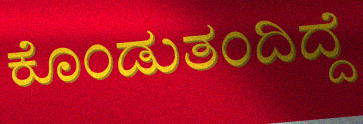
ಕೊಂಡುತಂದಿದ್ದೆ